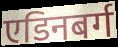
एडिनबर्ग